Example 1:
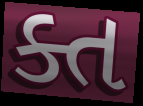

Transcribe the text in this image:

ક્ત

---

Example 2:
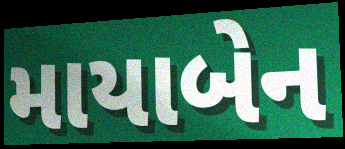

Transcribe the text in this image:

માયાબેન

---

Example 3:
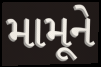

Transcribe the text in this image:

મામૂને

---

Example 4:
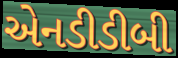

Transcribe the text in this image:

એનડીડીબી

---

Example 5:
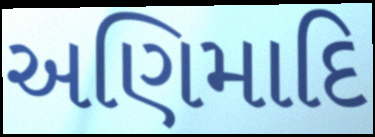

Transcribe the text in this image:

અણિમાદિ